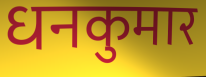
धनकुमार